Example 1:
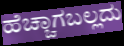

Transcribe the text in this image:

ಹೆಚ್ಚಾಗಬಲ್ಲದು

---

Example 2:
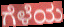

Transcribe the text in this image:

ಗೆಳೆಯ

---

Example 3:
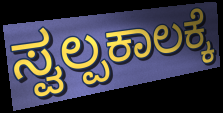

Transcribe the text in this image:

ಸ್ವಲ್ಪಕಾಲಕ್ಕೆ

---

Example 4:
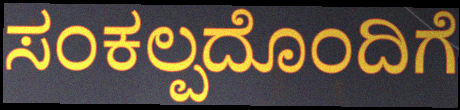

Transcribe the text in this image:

ಸಂಕಲ್ಪದೊಂದಿಗೆ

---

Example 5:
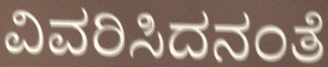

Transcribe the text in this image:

ವಿವರಿಸಿದನಂತೆ